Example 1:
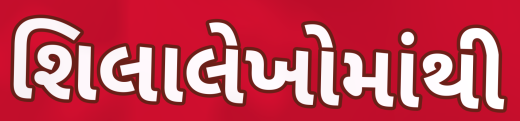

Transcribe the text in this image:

શિલાલેખોમાંથી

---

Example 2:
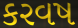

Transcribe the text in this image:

કરવષ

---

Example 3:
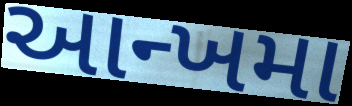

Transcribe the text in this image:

આન્ખમા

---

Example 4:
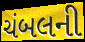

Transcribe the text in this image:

ચંબલની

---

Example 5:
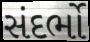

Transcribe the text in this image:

સંદર્ભો